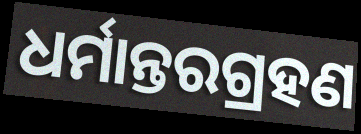
ଧର୍ମାନ୍ତରଗ୍ରହଣ